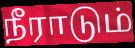
நீராடும்